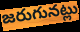
జరుగునట్లు